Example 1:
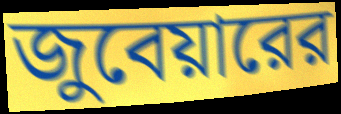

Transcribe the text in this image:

জুবেয়ারের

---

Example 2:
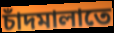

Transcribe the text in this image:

চাঁদমালাতে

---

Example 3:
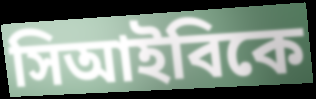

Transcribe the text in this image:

সিআইবিকে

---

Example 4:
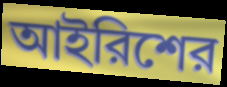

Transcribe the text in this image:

আইরিশের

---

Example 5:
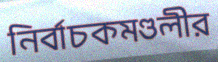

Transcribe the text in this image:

নির্বাচকমণ্ডলীর